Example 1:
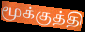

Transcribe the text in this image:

மூக்குத்தி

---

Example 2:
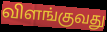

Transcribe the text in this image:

விளங்குவது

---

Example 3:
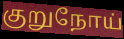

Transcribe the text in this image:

குறுநோய்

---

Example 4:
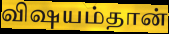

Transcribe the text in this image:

விஷயம்தான்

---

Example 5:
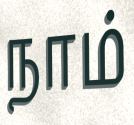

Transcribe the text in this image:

நாம்